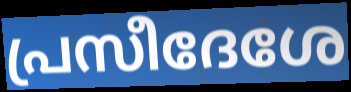
പ്രസീദേശേ